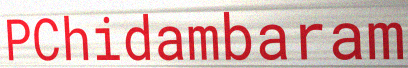
PChidambaram